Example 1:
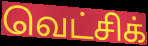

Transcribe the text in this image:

வெட்சிக்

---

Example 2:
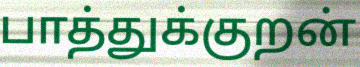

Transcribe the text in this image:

பாத்துக்குறன்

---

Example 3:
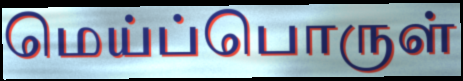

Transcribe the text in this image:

மெய்ப்பொருள்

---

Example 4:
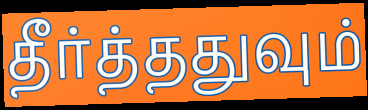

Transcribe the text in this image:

தீர்த்ததுவும்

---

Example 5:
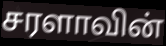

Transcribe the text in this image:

சரளாவின்